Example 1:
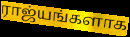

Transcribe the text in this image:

ராஜ்யங்களாக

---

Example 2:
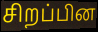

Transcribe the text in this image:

சிறப்பின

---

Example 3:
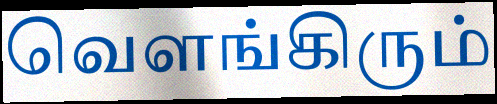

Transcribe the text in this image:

வெளங்கிரும்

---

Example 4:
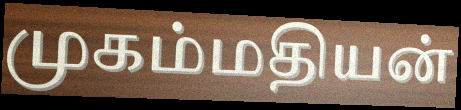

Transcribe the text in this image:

முகம்மதியன்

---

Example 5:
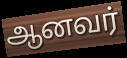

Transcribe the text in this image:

ஆனவர்